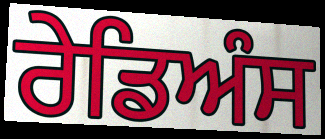
ਰੇਡਿਅੰਸ